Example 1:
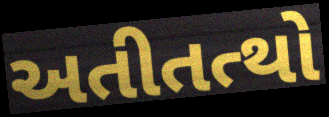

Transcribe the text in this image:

અતીતત્થો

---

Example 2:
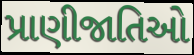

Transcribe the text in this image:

પ્રાણીજાતિઓ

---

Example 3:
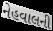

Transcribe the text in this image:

નેહવાલની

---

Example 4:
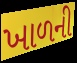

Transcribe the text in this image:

ખાળની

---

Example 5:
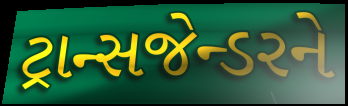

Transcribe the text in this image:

ટ્રાન્સજેન્ડરને